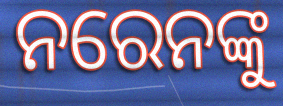
ନରେନଙ୍କୁ